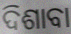
ଦିଶାବା